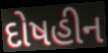
દોષહીન